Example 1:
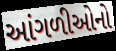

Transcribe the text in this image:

આંગળીઓનો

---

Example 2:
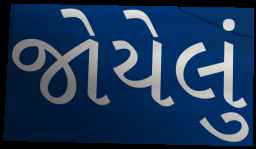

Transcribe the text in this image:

જોયેલું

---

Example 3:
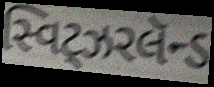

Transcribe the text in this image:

સ્વિટ્ઝરલૅન્ડ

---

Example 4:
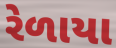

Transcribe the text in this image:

રેળાયા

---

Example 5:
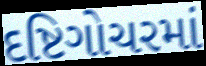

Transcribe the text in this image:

દષ્ટિગોચરમાં